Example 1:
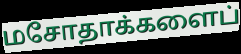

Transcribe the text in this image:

மசோதாக்களைப்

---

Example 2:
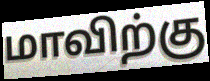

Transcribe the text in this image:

மாவிற்கு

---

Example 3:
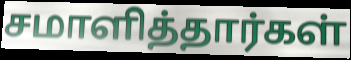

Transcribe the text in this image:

சமாளித்தார்கள்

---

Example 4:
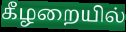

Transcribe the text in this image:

கீழறையில்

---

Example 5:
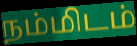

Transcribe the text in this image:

நம்மிடம்